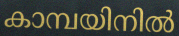
കാമ്പയിനിൽ